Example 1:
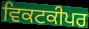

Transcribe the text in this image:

ਵਿਕਟਕੀਪਰ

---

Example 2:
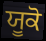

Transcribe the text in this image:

ਯੂਕੋ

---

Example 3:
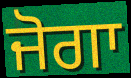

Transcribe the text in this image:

ਜੋਗਾ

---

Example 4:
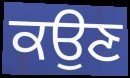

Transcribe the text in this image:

ਕਉਣ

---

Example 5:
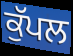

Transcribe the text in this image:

ਕੁੱਪਲ